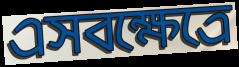
এসবক্ষেত্রে